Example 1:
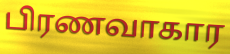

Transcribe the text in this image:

பிரணவாகார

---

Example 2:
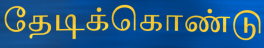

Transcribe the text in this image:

தேடிக்கொண்டு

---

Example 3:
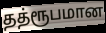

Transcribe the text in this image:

தத்ரூபமான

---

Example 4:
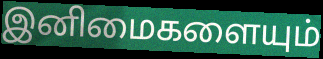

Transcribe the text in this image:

இனிமைகளையும்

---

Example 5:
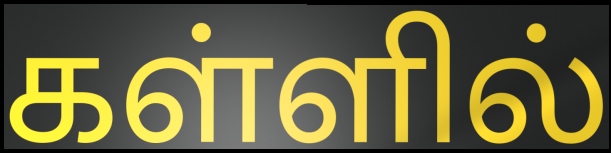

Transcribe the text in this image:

கள்ளில்